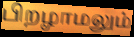
பிறழாமலும்